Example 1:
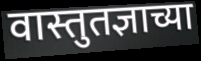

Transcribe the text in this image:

वास्तुतज्ञाच्या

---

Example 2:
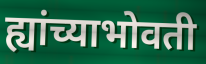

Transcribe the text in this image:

ह्यांच्याभोवती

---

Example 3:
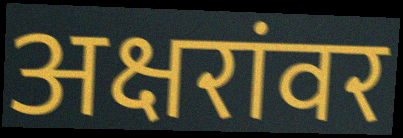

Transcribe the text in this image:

अक्षरांवर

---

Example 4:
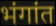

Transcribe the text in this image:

भंगांत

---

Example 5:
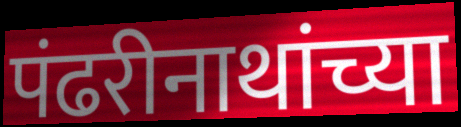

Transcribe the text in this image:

पंढरीनाथांच्या